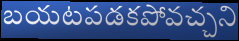
బయటపడకపోవచ్చని